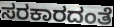
ಸರಕಾರದಂತೆ